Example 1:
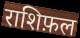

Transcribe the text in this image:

राशिफ़ल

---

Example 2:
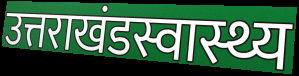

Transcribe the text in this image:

उत्तराखंडस्वास्थ्य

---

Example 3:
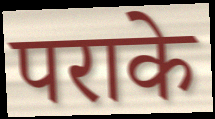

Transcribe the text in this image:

पराके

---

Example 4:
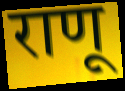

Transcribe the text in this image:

राणू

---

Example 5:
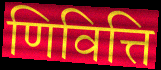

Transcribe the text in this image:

णिवित्ति